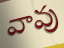
వావు